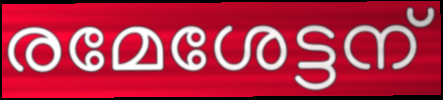
രമേശേട്ടന്